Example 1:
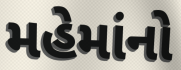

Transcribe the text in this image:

મહેમાંનો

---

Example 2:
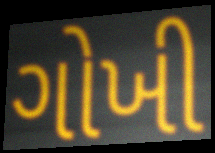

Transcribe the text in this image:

ગોખી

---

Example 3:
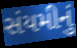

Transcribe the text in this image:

સંયમીનું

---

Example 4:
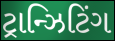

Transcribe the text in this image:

ટ્રાન્ઝિટિંગ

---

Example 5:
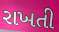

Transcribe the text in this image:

રાખતી